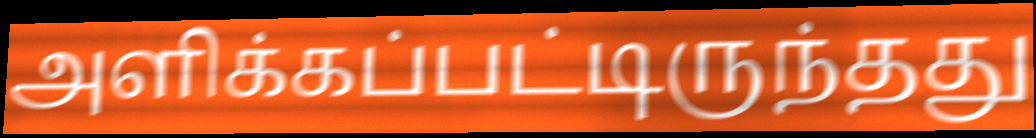
அளிக்கப்பட்டிருந்தது